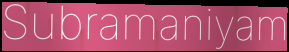
Subramaniyam